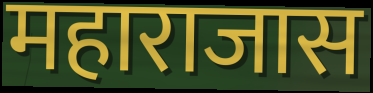
महाराजास